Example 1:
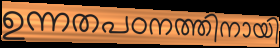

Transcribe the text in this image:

ഉന്നതപഠനത്തിനായി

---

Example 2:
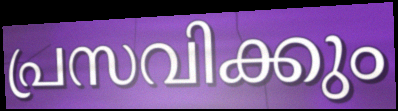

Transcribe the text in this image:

പ്രസവിക്കും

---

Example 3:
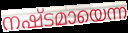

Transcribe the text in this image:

നഷ്ടമായെന്ന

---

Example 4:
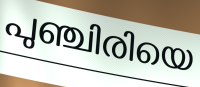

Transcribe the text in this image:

പുഞ്ചിരിയെ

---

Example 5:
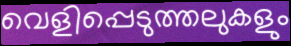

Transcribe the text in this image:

വെളിപ്പെടുത്തലുകളും